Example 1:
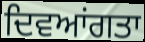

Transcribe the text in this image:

ਦਿਵਆਂਗਤਾ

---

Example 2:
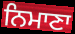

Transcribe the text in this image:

ਨਿਮਾਣਾ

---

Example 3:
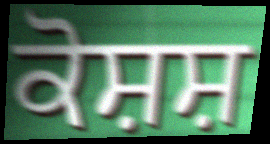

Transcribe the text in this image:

ਕੋਸ਼ਸ਼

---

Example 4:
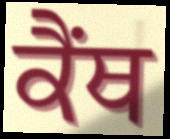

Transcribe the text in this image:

ਕੈਂਥ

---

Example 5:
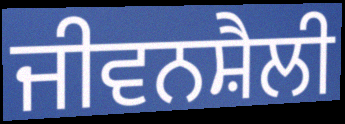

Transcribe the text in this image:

ਜੀਵਨਸ਼ੈਲੀ